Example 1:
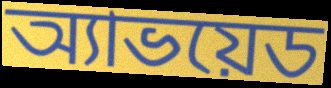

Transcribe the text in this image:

অ্যাভয়েড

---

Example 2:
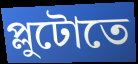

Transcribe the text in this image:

প্লুটোতে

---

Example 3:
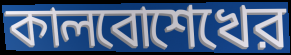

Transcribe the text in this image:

কালবোশেখের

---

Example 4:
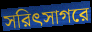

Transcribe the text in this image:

সরিৎসাগরে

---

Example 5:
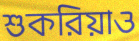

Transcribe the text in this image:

শুকরিয়াও